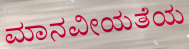
ಮಾನವೀಯತೆಯ